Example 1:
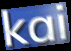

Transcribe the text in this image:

kai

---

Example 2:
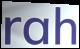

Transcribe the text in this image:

rah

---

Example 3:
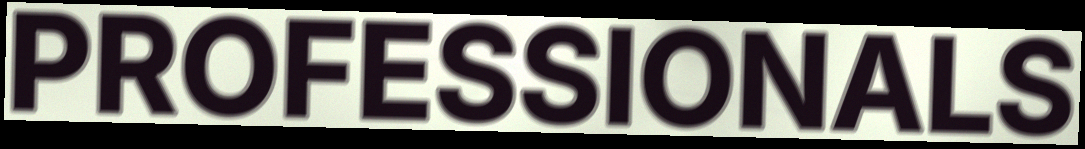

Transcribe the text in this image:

PROFESSIONALS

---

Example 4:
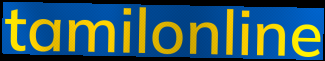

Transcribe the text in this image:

tamilonline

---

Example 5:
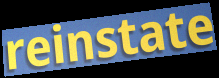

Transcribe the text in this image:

reinstate